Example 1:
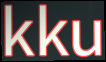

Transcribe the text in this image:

kku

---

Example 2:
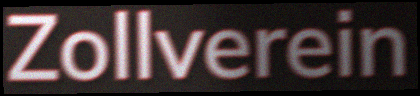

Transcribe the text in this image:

Zollverein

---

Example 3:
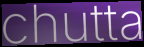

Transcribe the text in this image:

chutta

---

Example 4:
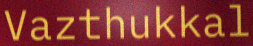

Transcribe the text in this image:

Vazthukkal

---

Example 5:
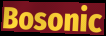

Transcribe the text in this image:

Bosonic